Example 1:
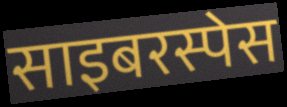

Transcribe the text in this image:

साइबरस्पेस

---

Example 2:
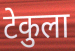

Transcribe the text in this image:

टेकुला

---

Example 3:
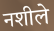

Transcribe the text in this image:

नशीले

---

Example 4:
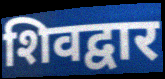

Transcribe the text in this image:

शिवद्वार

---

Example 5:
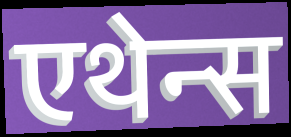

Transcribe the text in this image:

एथेन्स